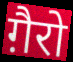
ग़ैरो